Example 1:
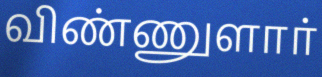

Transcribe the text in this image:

விண்ணுளார்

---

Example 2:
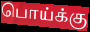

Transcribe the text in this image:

பொய்க்கு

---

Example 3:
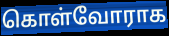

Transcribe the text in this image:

கொள்வோராக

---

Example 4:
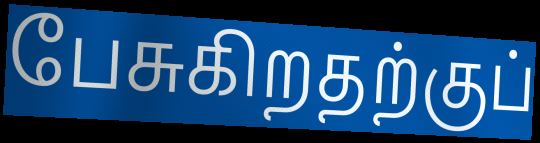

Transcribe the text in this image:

பேசுகிறதற்குப்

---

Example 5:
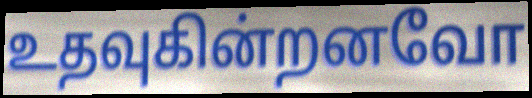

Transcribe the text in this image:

உதவுகின்றனவோ